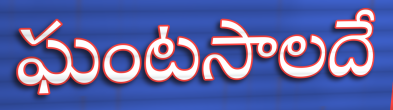
ఘంటసాలదే